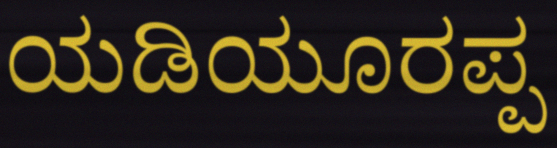
ಯಡಿಯೂರಪ್ಪ